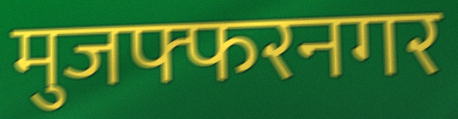
मुजफ्फरनगर